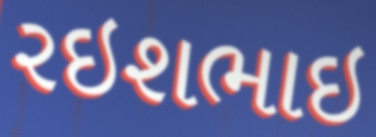
રઇશભાઇ